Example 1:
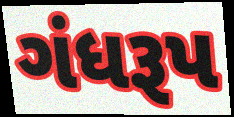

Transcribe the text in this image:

ગંધરૂપ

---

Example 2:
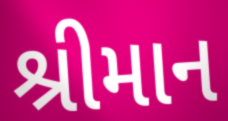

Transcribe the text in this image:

શ્રીમાન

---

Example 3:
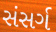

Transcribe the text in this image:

સંસર્ગ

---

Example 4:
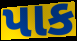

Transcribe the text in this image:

પાક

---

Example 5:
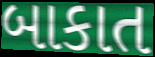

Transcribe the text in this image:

બાકાત